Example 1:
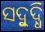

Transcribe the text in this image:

ସଦ୍ବୁଦ୍ଧି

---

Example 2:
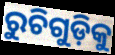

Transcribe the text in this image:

ରୁଚିଗୁଡ଼ିକୁ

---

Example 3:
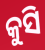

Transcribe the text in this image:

କୁସି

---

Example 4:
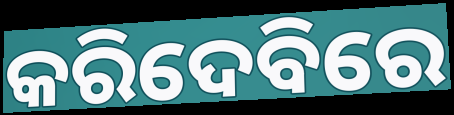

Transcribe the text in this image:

କରିଦେବିରେ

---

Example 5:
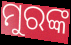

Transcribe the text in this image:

ମୁରଙ୍କ